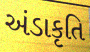
અંડાકૃતિ